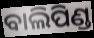
ବାଲିପିଣ୍ଡ